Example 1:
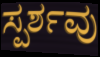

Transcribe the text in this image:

ಸ್ಪರ್ಶವು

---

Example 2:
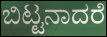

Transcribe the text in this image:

ಬಿಟ್ಟನಾದರೆ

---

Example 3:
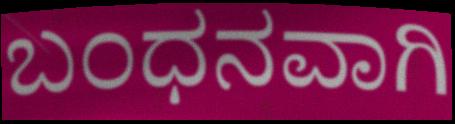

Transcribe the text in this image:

ಬಂಧನವಾಗಿ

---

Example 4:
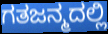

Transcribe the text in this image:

ಗತಜನ್ಮದಲ್ಲಿ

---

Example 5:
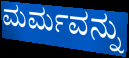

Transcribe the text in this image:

ಮರ್ಮವನ್ನು